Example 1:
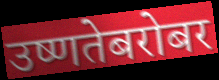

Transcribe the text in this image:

उष्णतेबरोबर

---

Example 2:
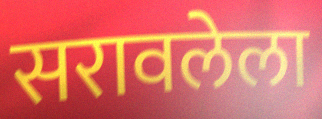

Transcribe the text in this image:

सरावलेला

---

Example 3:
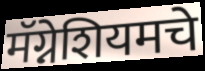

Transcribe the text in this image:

मॅग्नेशियमचे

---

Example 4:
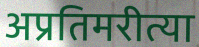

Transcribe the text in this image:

अप्रतिमरीत्या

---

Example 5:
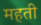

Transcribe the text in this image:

महती